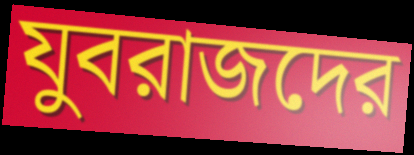
যুবরাজদের